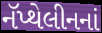
નૅપ્થેલીનનાં